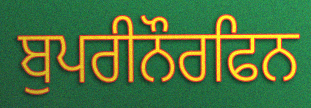
ਬੁਪਰੀਨੌਰਫਿਨ